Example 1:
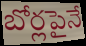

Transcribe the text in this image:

బోర్లపైనే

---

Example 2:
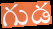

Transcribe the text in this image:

గుడ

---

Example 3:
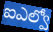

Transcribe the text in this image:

ఐఎల్వో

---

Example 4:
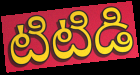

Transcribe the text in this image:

టిటిడి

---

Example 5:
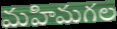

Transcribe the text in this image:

మహిమగల